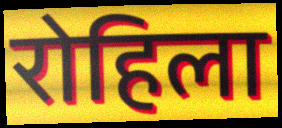
रोहिला